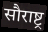
सौराष्ट्र